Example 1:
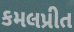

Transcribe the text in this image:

કમલપ્રીત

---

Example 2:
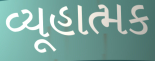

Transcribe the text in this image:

વ્યૂહાત્મક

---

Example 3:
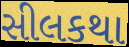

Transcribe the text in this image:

સીલકથા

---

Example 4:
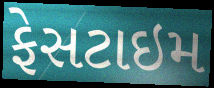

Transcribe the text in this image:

ફેસટાઇમ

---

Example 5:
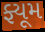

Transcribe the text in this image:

ફ્યૂમ